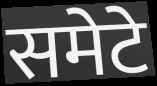
समेटे